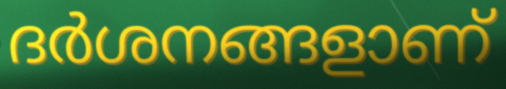
ദർശനങ്ങളാണ്